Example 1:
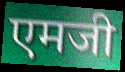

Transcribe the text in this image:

एमजी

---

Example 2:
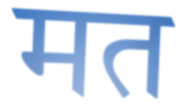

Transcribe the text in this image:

मत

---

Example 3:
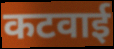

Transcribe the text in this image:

कटवाई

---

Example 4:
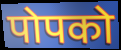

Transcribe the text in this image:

पोपको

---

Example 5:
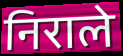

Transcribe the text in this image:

निराले